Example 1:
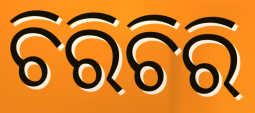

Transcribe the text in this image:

ଚିରିଚିରି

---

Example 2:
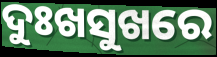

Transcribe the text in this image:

ଦୁଃଖସୁଖରେ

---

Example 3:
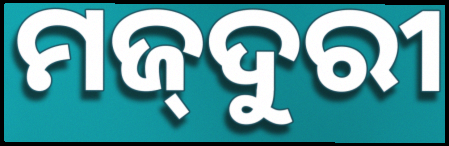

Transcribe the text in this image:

ମଜ୍‌ଦୁରୀ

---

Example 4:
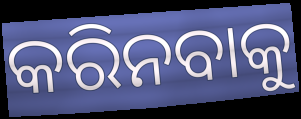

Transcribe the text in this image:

କରିନବାକୁ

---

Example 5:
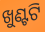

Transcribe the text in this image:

ଖୁଣ୍ଟଟି